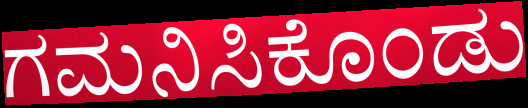
ಗಮನಿಸಿಕೊಂಡು